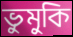
ভুমুকি